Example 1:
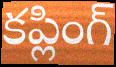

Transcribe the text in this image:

కప్లింగ్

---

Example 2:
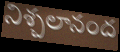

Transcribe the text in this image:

నిశ్చలానంద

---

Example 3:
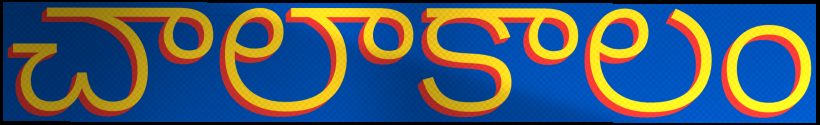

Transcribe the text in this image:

చాలాకాలం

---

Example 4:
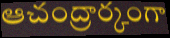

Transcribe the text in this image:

ఆచంద్రార్కంగా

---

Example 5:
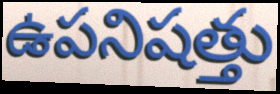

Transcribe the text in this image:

ఉపనిషత్తు